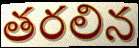
తరలిన